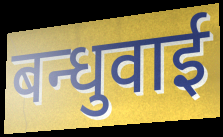
बन्धुवाई